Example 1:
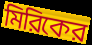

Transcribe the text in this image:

মিরিকের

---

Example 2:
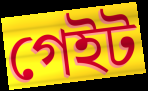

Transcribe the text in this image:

গেইট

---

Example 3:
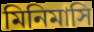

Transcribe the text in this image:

মিনিমাসি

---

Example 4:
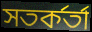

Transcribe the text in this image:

সতর্কর্তা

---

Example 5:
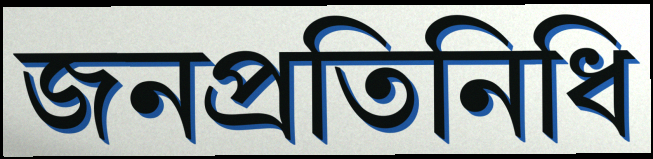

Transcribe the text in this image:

জনপ্রতিনিধি